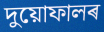
দুয়োফালৰ